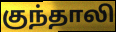
குந்தாலி